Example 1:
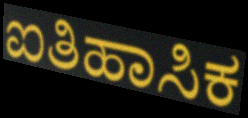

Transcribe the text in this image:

ಐತಿಹಾಸಿಕ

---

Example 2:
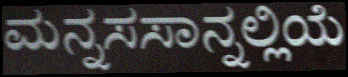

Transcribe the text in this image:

ಮನ್ನಸಸಾನ್ನಲ್ಲಿಯೆ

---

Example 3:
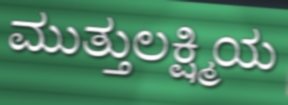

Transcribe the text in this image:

ಮುತ್ತುಲಕ್ಷ್ಮಿಯ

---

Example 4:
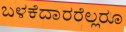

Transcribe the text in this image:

ಬಳಕೆದಾರರೆಲ್ಲರೂ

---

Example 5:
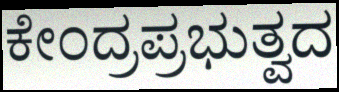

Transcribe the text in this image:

ಕೇಂದ್ರಪ್ರಭುತ್ವದ